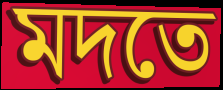
মদতে